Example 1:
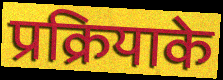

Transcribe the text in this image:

प्रक्रियाके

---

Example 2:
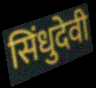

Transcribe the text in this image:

सिंधुदेवी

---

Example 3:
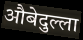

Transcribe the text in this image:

औबेदुल्ला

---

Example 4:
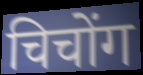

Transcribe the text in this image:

चिचोंग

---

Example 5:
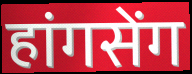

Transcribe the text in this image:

हांगसेंग